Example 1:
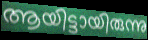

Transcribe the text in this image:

ആയിട്ടായിരുന്നു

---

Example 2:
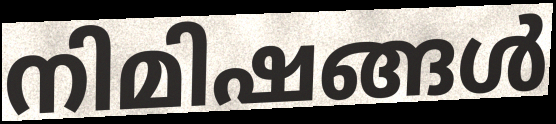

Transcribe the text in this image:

നിമിഷങ്ങൾ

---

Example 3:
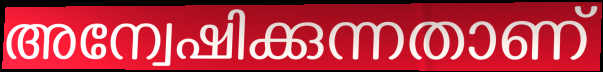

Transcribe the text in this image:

അന്വേഷിക്കുന്നതാണ്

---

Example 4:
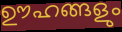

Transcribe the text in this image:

ഊഹങ്ങളും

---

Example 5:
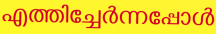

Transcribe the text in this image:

എത്തിച്ചേർന്നപ്പോൾ